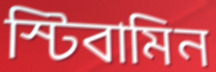
স্টিবামিন